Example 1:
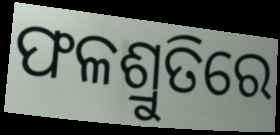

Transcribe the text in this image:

ଫଳଶ୍ରୁତିରେ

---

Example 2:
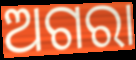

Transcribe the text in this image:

ଅଗରା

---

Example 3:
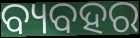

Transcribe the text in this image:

ବ୍ୟବହର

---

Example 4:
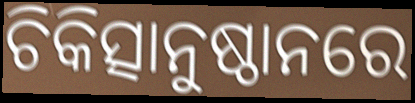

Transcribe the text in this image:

ଚିକିତ୍ସାନୁଷ୍ଠାନରେ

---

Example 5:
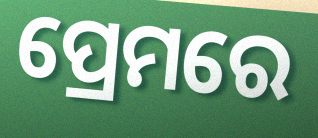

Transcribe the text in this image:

ପ୍ରେମରେ